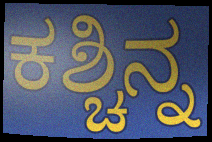
ಕಶ್ಚಿನ್ನ